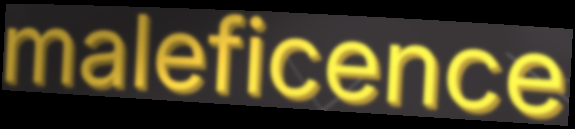
maleficence